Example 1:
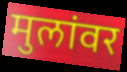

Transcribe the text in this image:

मुलांवर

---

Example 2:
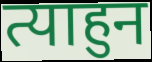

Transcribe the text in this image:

त्याहुन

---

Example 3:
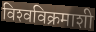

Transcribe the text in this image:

विश्वविक्रमाशी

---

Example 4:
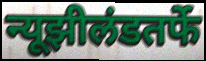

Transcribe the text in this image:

न्यूझीलंडतर्फे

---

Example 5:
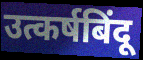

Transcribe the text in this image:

उत्कर्षबिंदू